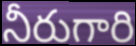
నీరుగారి